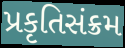
પ્રકૃતિસંક્રમ